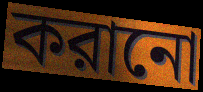
করানো